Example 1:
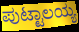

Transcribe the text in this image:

ಪುಟ್ಟಾಲಯ್ಯ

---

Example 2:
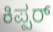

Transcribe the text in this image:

ಕಿಪ್ಪರ್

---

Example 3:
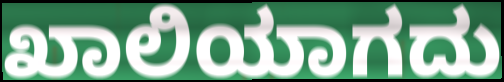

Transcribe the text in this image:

ಖಾಲಿಯಾಗದು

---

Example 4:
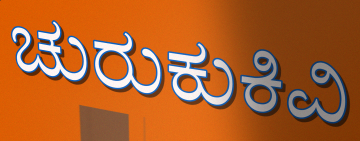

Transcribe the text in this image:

ಚುರುಕುಕಿವಿ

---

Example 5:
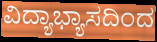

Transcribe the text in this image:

ವಿದ್ಯಾಭ್ಯಾಸದಿಂದ